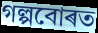
গল্পবোৰত